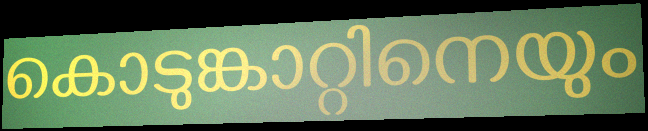
കൊടുങ്കാറ്റിനെയും